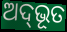
ଅଦ୍‍ଭୂତ